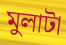
মুলাটা